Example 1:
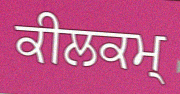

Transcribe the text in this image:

ਕੀਲਕਮ੍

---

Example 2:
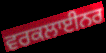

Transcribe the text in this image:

ਵਰਕਲਾਈਨਰ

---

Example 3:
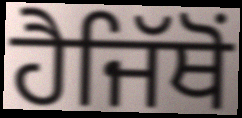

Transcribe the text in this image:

ਹੈਜਿੱਥੋਂ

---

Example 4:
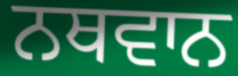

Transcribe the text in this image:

ਨਥਵਾਨ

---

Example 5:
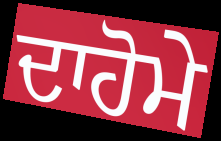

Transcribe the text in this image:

ਦਾਹੋਮੇ